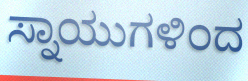
ಸ್ನಾಯುಗಳಿಂದ